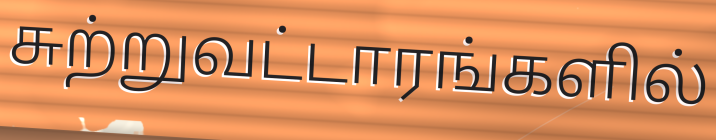
சுற்றுவட்டாரங்களில்